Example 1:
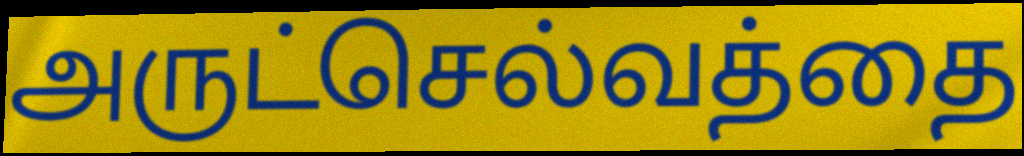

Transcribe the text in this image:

அருட்செல்வத்தை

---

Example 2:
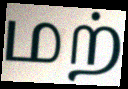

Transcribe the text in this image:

மற்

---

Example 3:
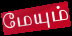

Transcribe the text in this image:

மேயும்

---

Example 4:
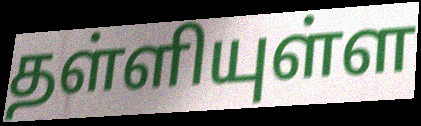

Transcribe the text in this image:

தள்ளியுள்ள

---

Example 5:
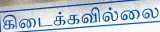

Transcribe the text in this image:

கிடைக்கவில்லை